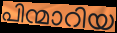
പിന്മാറിയ